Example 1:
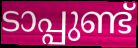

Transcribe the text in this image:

ടാപ്പുണ്ട്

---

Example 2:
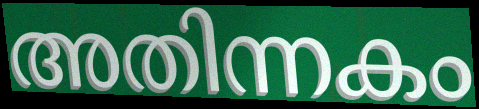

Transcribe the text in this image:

അതിന്നകം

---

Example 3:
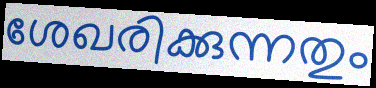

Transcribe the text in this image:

ശേഖരിക്കുന്നതും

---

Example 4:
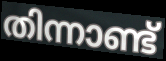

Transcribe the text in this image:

തിന്നാണ്ട്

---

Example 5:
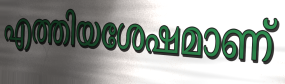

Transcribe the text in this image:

എത്തിയശേഷമാണ്